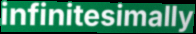
infinitesimally